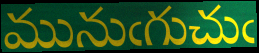
మునుఁగుచుఁ